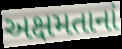
અક્ષમતાનાં